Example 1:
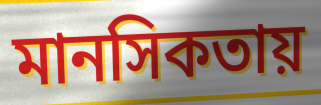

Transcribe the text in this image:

মানসিকতায়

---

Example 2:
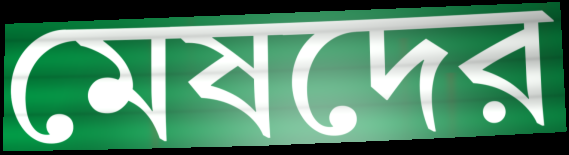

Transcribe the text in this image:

মেষদের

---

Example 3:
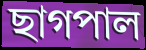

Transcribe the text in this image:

ছাগপাল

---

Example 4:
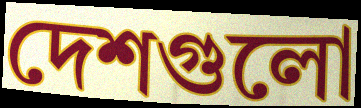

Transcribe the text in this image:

দেশগুলো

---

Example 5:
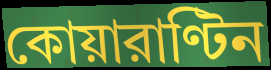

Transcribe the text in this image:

কোয়ারাণ্টিন